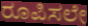
ರೂಪಿಸಲೇ